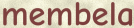
membela